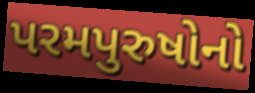
પરમપુરુષોનો